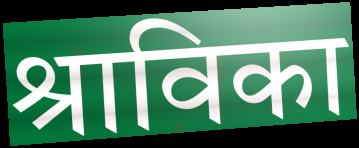
श्राविका